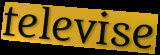
televise